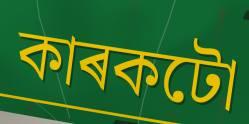
কাৰকটো